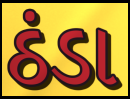
ઠંડા